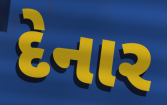
દેનાર